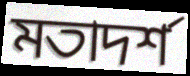
মতাদৰ্শ